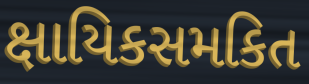
ક્ષાયિકસમકિત